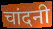
चांदनी